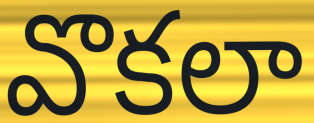
వొకలా